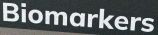
Biomarkers